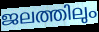
ജലത്തിലും